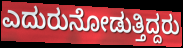
ಎದುರುನೋಡುತ್ತಿದ್ದರು